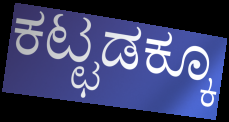
ಕಟ್ಟಡಕ್ಕೂ